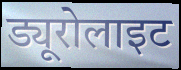
ड्यूरोलाइट